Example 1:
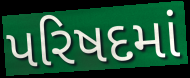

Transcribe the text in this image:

પરિષદમાં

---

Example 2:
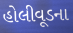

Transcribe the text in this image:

હોલીવૂડના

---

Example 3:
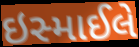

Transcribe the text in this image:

ઇસ્માઈલે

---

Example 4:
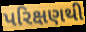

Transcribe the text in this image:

પરિક્ષણથી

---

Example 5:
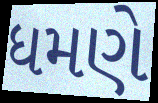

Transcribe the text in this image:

ધમણે